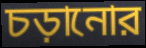
চড়ানোর